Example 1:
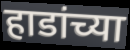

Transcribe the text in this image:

हाडांच्या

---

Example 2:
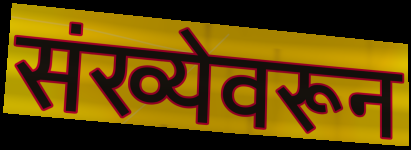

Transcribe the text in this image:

संख्येवरून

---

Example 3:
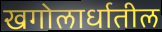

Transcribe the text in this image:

खगोलार्धातील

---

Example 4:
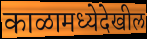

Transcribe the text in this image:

काळामध्येदेखील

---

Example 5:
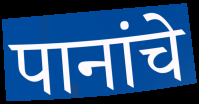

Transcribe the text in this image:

पानांचे